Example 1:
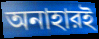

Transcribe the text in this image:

অনাহারই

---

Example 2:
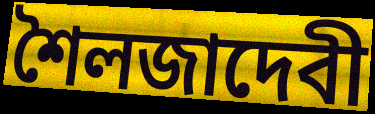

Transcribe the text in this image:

শৈলজাদেবী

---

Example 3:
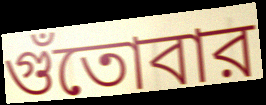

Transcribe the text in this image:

গুঁতোবার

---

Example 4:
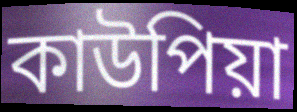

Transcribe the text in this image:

কাউপিয়া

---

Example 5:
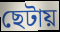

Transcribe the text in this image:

ছেটায়